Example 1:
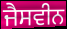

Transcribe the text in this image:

ਜੈਸਵੀਨ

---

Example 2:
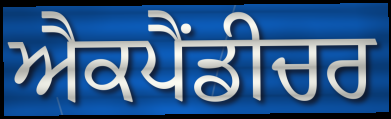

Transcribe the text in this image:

ਐਕਪੈਂਡੀਚਰ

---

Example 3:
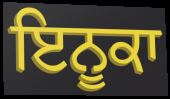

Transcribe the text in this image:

ਇਨੂਕਾ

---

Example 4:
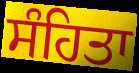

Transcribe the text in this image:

ਸੰਹਿਤਾ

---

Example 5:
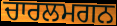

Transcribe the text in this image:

ਚਾਰਲਮਗਨ